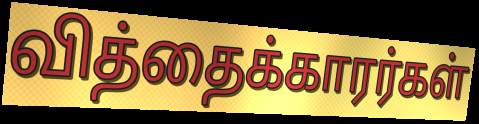
வித்தைக்காரர்கள்